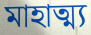
মাহাত্ম্য